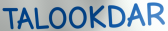
TALOOKDAR